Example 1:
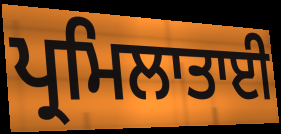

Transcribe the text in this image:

ਪ੍ਰਮਿਲਾਤਾਈ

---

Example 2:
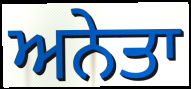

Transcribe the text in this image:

ਅਨੇਤਾ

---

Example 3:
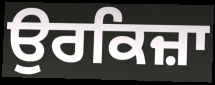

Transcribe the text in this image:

ਉਰਕਿਜ਼ਾ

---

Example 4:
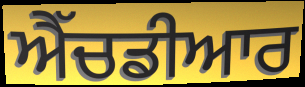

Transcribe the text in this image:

ਐੱਚਡੀਆਰ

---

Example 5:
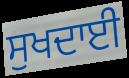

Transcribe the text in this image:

ਸੁਖਦਾਈ